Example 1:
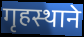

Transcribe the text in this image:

गृहस्थाने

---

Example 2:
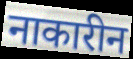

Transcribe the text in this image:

नाकारीन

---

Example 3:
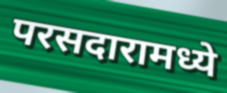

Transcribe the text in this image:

परसदारामध्ये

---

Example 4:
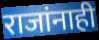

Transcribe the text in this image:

राजांनाही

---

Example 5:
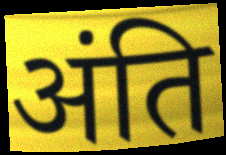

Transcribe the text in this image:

अंति